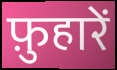
फ़ुहारें